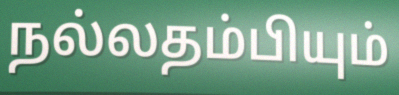
நல்லதம்பியும்